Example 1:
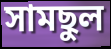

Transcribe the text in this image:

সামছুল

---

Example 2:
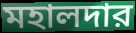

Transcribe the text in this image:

মহালদার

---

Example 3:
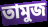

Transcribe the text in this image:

তামুজ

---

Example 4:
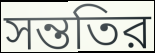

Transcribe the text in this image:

সন্ততির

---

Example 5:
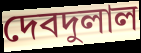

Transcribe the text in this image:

দেবদুলাল